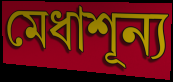
মেধাশূন্য